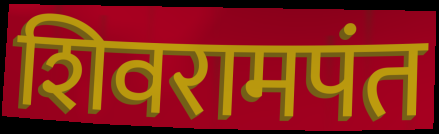
शिवरामपंत